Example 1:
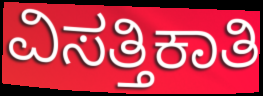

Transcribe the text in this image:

ವಿಸತ್ತಿಕಾತಿ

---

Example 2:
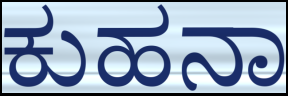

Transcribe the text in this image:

ಕುಹನಾ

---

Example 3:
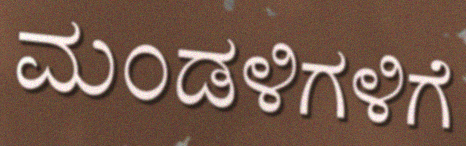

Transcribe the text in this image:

ಮಂಡಳಿಗಳಿಗೆ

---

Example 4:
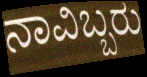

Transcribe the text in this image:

ನಾವಿಬ್ಬರು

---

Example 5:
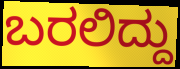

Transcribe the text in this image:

ಬರಲಿದ್ದು